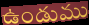
ఉండుము